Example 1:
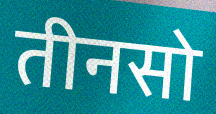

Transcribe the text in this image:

तीनसो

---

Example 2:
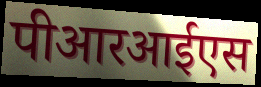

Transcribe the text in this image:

पीआरआईएस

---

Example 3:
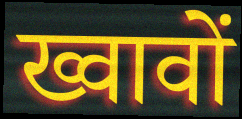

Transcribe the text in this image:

ख्वावों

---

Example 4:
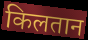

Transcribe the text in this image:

किलतान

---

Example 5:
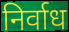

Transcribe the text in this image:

निर्वाध